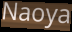
Naoya